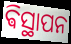
ଵିସ୍ଥାପନ